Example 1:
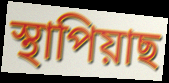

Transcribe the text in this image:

স্থাপিয়াছ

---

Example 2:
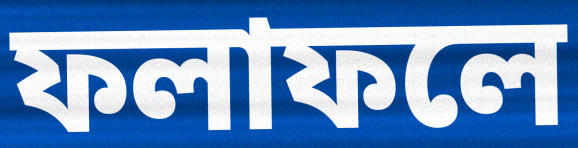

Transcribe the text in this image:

ফলাফলে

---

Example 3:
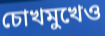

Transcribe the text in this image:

চোখমুখেও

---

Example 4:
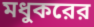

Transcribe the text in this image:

মধুকরের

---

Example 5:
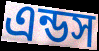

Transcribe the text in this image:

এন্ডস